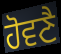
ਹੋਵਣੈ